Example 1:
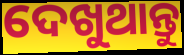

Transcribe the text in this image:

ଦେଖୁଥାନ୍ତୁ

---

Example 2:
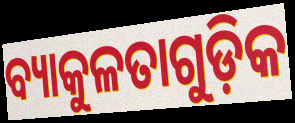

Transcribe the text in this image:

ବ୍ୟାକୁଳତାଗୁଡ଼ିକ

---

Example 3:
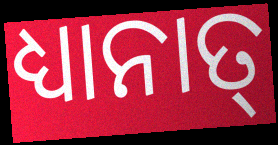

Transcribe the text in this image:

ଧ୍ୟାନାତ୍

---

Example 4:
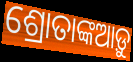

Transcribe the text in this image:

ଶ୍ରୋତାଙ୍କଆଡ଼ୁ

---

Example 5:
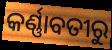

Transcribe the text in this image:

କର୍ଣ୍ଣାବତୀରୁ